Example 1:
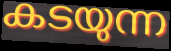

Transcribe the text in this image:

കടയുന്ന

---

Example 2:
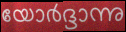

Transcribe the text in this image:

യോർദ്ദാന്നു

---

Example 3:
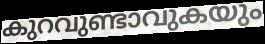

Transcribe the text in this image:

കുറവുണ്ടാവുകയും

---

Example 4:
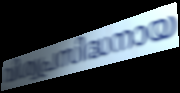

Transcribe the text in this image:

വിശ്വപ്രസിദ്ധനായ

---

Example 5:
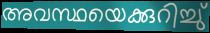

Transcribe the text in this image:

അവസ്ഥയെക്കുറിച്ചു്